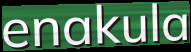
enakula